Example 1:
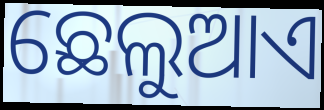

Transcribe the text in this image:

ଛେଲୁଆଏ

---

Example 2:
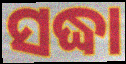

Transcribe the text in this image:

ସଦ୍ଧା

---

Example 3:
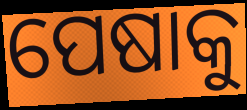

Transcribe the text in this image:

ପେଷାକୁ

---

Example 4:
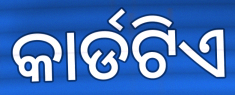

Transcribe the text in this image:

କାର୍ଡଟିଏ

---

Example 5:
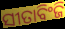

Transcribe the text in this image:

ସୀତାବିଂଜି